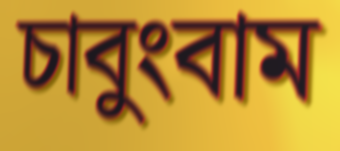
চাবুংবাম